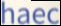
haec